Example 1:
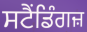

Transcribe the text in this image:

ਸਟੈਂਡਿੰਗਜ਼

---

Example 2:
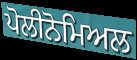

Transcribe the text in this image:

ਪੋਲੀਨੋਮਿਅਲ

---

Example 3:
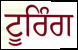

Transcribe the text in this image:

ਟੂਰਿੰਗ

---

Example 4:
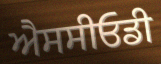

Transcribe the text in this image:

ਐਸਸੀਓਡੀ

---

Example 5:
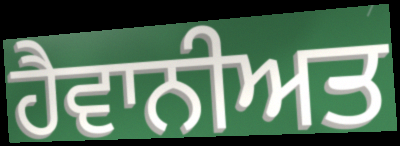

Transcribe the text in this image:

ਹੈਵਾਨੀਅਤ